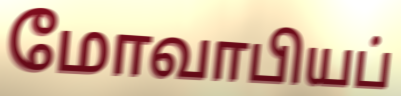
மோவாபியப்